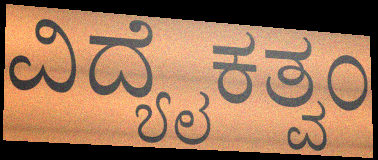
ವಿದ್ಯೈಕತ್ವಂ